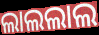
ଲାଲଲାଲ